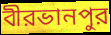
বীরভানপুর